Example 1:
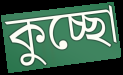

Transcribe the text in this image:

কুচ্ছো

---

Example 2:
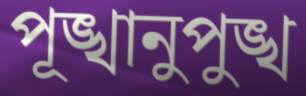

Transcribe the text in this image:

পূঙ্খানুপুঙ্খ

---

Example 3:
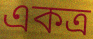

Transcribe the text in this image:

একত্র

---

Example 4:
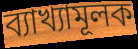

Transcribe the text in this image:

ব্যাখ্যামূলক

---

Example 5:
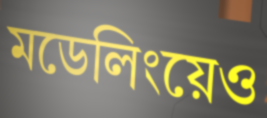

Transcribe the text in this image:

মডেলিংয়েও